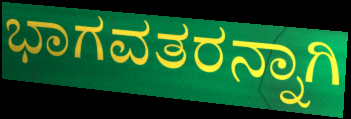
ಭಾಗವತರನ್ನಾಗಿ